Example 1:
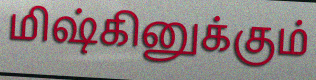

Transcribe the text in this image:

மிஷ்கினுக்கும்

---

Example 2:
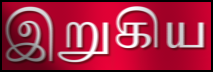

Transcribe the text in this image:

இறுகிய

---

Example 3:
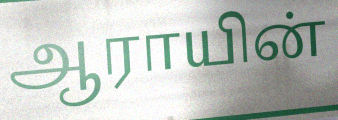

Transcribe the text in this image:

ஆராயின்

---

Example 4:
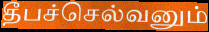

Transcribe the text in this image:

தீபச்செல்வனும்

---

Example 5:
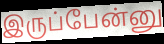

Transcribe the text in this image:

இருப்பேன்னு